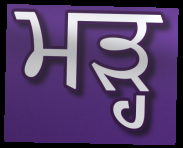
ਮੜ੍ਹ